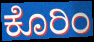
ಕೊರಿಂ